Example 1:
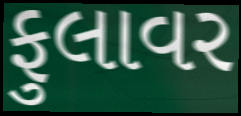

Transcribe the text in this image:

ફુલાવર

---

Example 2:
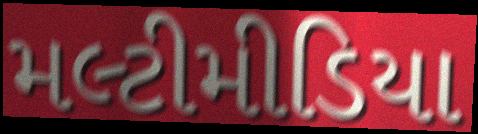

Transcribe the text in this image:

મલ્ટીમીડિયા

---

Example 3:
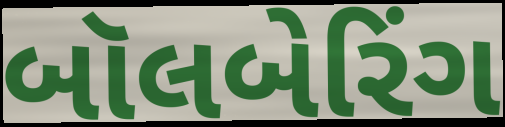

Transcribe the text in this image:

બૉલબેરિંગ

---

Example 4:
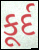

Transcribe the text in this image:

કૂર્દ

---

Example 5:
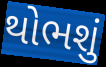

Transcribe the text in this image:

થોભશું